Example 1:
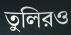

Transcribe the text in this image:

তুলিরও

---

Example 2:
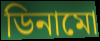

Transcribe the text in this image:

ডিনামো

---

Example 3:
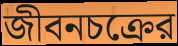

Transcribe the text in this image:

জীবনচক্রের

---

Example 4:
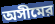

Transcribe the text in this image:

অসীমের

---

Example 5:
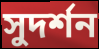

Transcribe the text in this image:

সুদর্শন